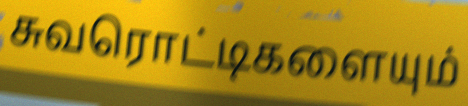
சுவரொட்டிகளையும்